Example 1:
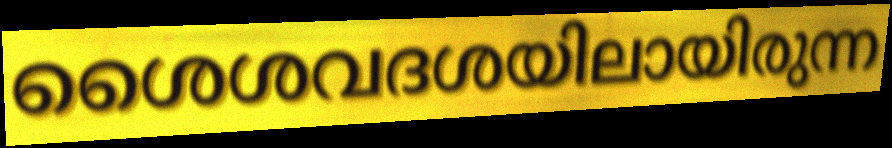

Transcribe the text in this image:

ശൈശവദശയിലായിരുന്ന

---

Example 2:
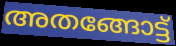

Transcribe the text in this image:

അതങ്ങോട്ട്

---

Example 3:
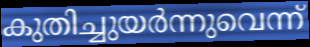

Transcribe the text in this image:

കുതിച്ചുയർന്നുവെന്ന്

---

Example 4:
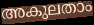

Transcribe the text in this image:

അകുലതാം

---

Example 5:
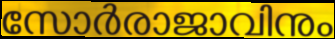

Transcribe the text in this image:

സോർരാജാവിനും